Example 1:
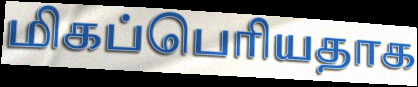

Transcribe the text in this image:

மிகப்பெரியதாக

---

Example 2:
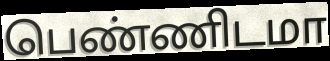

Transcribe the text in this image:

பெண்ணிடமா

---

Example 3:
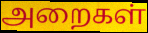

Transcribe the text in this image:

அறைகள்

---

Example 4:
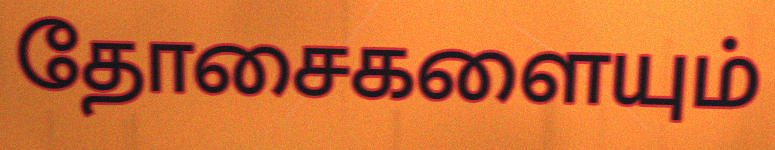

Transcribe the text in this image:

தோசைகளையும்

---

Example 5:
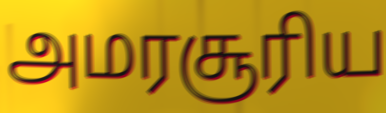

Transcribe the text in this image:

அமரசூரிய